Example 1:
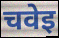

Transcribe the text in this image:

चवेइ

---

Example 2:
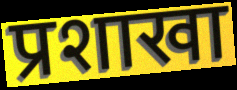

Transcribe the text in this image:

प्रशाखा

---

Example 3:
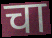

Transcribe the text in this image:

चा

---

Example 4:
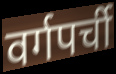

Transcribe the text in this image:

वर्गपर्ची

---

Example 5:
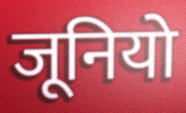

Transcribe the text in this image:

जूनियो